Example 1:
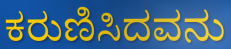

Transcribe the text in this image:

ಕರುಣಿಸಿದವನು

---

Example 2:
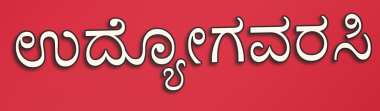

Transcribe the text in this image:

ಉದ್ಯೋಗವರಸಿ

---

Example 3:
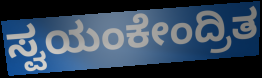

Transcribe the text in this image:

ಸ್ವಯಂಕೇಂದ್ರಿತ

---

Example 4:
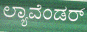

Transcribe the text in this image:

ಲ್ಯಾವೆಂಡರ್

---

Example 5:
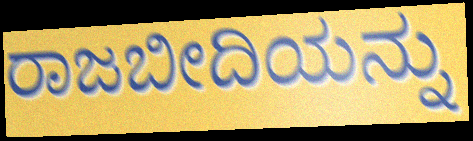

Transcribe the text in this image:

ರಾಜಬೀದಿಯನ್ನು